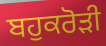
ਬਹੁਕਰੋੜੀ